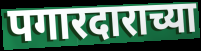
पगारदाराच्या